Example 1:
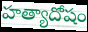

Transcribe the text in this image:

హత్యాదోషం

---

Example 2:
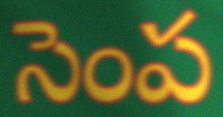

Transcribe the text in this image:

సెంప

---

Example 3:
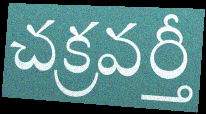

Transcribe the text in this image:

చక్రవర్తీ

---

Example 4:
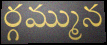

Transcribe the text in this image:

ర్గమ్మున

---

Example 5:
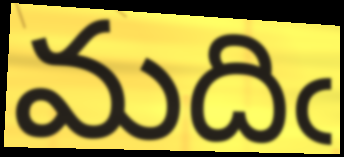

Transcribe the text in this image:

మదిఁ